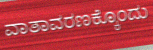
ವಾತಾವರಣಕ್ಕೊಂದು